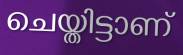
ചെയ്തിട്ടാണ്